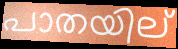
പാതയില്